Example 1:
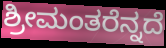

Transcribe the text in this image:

ಶ್ರೀಮಂತರೆನ್ನದೆ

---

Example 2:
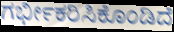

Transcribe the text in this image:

ಗರ್ಭೀಕರಿಸಿಕೊಂಡಿದೆ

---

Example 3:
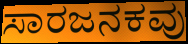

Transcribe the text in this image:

ಸಾರಜನಕವು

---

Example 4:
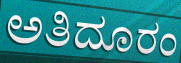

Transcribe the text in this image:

ಅತಿದೂರಂ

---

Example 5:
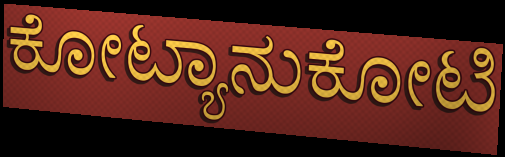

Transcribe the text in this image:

ಕೋಟ್ಯಾನುಕೋಟಿ